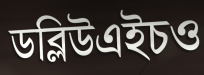
ডব্লিউএইচও